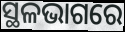
ସ୍ଥଳଭାଗରେ